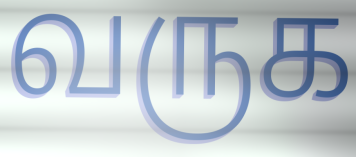
வருக